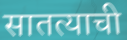
सातत्याची